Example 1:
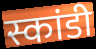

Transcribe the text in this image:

स्कांडी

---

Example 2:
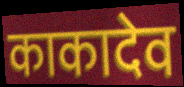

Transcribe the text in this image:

काकादेव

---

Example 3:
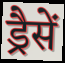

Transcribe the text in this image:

ड्रैसें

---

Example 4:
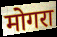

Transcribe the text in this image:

मोगरा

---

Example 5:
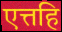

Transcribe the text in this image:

एत्तहि